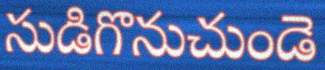
సుడిగొనుచుండె